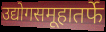
उद्योगसमूहातर्फे